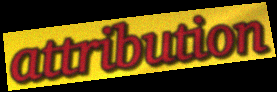
attribution